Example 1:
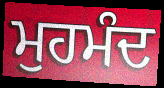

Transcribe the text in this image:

ਮੁਹਮੰਦ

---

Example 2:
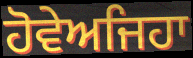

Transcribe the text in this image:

ਹੋਵੇਅਜਿਹਾ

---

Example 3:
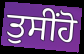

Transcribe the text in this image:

ਤੁਸੀਂਹੋ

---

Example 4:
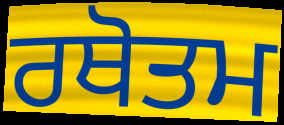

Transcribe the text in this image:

ਰਥੋਤਮ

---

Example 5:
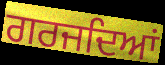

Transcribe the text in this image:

ਗਰਜਦਿਆਂ